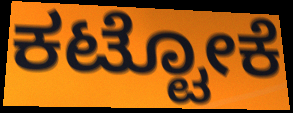
ಕಟ್ಟೋಕೆ